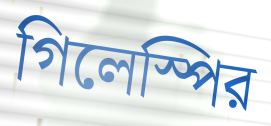
গিলেস্পির